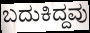
ಬದುಕಿದ್ದವು